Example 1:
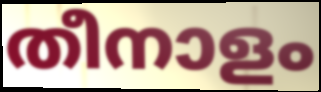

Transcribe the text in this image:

തീനാളം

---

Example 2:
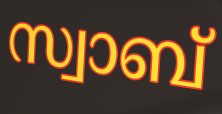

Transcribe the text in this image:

സ്വാബ്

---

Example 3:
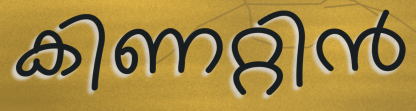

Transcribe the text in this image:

കിണറ്റിൻ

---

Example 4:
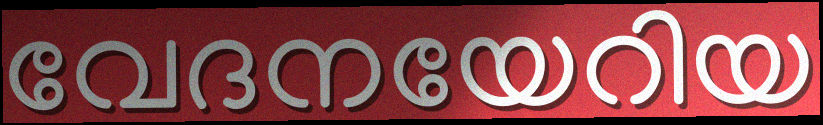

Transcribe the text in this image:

വേദനയേറിയ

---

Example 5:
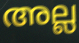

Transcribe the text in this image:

അല്ല